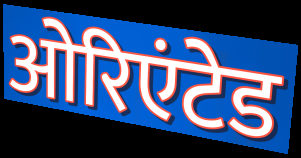
ओरिएंटेड